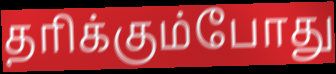
தரிக்கும்போது